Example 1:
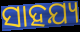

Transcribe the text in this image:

ସାହଯ୍ୟ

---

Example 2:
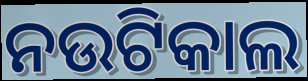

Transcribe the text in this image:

ନଉଟିକାଲ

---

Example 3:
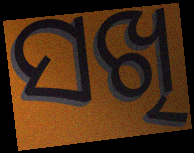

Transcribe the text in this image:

ସଖି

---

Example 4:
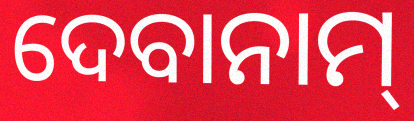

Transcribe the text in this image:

ଦେବାନାମ୍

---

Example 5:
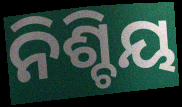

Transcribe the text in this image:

ନିଶ୍ଚିୟ